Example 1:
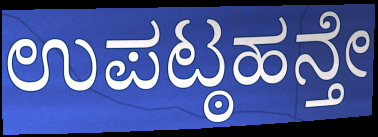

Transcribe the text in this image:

ಉಪಟ್ಠಹನ್ತೇ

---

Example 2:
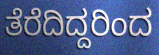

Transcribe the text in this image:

ತೆರೆದಿದ್ದರಿಂದ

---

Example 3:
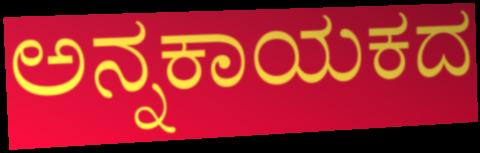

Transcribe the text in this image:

ಅನ್ನಕಾಯಕದ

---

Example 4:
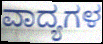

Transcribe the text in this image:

ವಾದ್ಯಗಳ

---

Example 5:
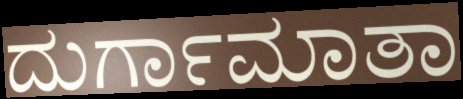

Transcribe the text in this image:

ದುರ್ಗಾಮಾತಾ